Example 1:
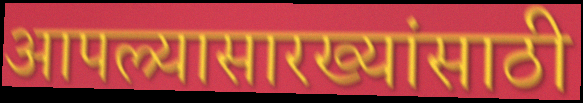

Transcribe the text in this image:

आपल्यासारख्यांसाठी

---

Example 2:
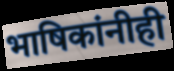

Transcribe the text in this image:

भाषिकांनीही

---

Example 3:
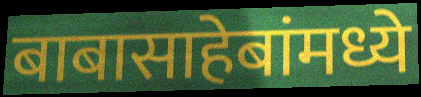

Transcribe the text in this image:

बाबासाहेबांमध्ये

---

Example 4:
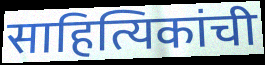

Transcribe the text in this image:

साहित्यिकांची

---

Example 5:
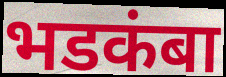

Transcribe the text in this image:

भडकंबा